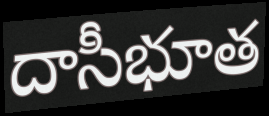
దాసీభూత